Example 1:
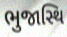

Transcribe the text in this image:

ભુજાસ્થિ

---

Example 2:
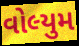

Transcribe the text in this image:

વોલ્યુમ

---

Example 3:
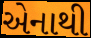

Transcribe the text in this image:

એનાથી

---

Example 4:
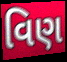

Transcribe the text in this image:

વિણ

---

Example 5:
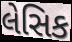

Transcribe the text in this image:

લેસિક